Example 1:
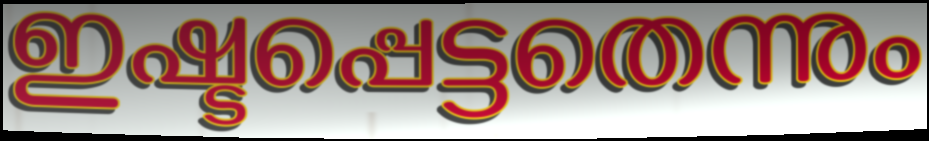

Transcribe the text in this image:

ഇഷ്ടപ്പെട്ടതെന്നും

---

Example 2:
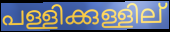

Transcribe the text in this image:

പള്ളിക്കുള്ളില്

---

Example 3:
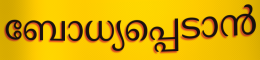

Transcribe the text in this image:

ബോധ്യപ്പെടാൻ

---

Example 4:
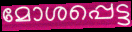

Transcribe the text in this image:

മോശപ്പെട്ട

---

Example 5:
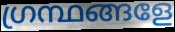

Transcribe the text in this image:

ഗ്രന്ഥങ്ങളേ